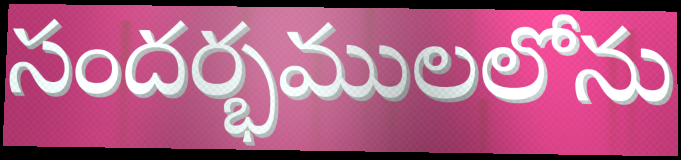
సందర్భములలోను